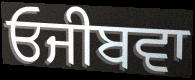
ਓਜੀਬਵਾ